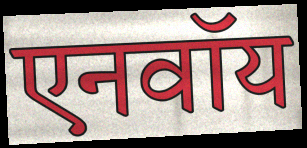
एनवॉय